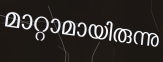
മാറ്റാമായിരുന്നു